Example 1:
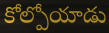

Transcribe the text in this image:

కోల్పోయాడు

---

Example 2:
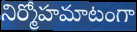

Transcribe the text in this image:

నిర్మోహమాటంగా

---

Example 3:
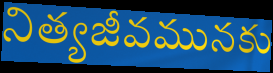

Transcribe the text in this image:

నిత్యజీవమునకు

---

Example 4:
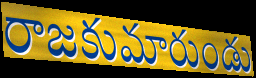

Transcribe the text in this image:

రాజకుమారుండు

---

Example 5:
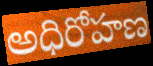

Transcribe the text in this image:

అధిరోహణ